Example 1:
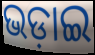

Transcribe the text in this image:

ଭଡ଼ାଇ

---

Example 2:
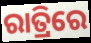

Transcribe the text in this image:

ରାତ୍ରିରେ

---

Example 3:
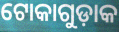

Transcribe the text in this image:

ଟୋକାଗୁଡ଼ାକ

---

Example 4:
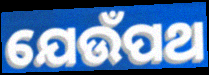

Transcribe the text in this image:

ଯେଉଁପଥ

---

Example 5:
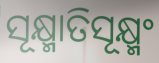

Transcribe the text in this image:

ସୂକ୍ଷ୍ମାତିସୂକ୍ଷ୍ମଂ